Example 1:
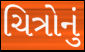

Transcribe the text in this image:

ચિત્રોનું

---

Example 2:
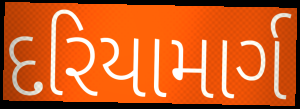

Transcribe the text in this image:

દરિયામાર્ગ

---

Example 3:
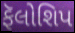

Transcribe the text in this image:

ફૅલોશિપ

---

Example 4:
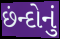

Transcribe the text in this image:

છંન્દોનું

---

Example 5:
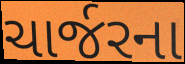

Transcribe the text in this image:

ચાર્જરના